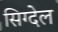
सिग्देल